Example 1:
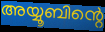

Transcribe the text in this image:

അയ്യൂബിന്റെ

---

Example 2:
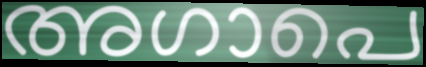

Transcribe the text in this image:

അഗാപെ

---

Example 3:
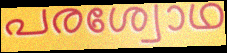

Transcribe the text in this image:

പരശ്വോഥ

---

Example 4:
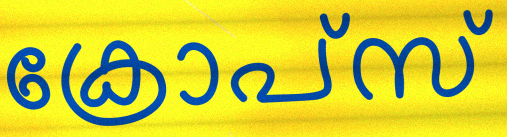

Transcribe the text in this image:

ക്രോപ്സ്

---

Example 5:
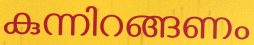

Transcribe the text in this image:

കുന്നിറങ്ങണം